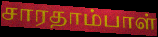
சாரதாம்பாள்